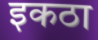
इकठा